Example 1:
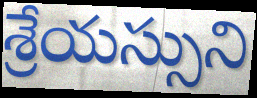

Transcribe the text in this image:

శ్రేయస్సుని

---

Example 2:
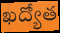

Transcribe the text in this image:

ఖద్యోత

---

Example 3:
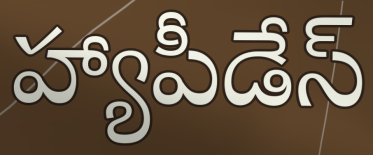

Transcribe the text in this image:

హ్యాపీడేస్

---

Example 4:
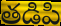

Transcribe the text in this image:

తడిపి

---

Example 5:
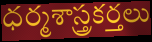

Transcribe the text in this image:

ధర్మశాస్త్రకర్తలు